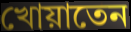
খোয়াতেন